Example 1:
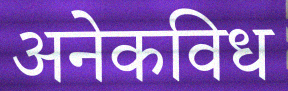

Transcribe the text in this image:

अनेकविध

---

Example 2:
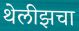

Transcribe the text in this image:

थेलीझचा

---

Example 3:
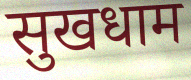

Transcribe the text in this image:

सुखधाम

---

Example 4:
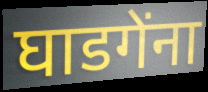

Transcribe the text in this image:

घाडगेंना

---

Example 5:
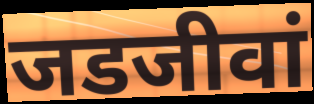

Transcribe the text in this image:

जडजीवां